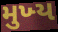
મુખ્‍ય